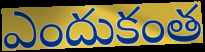
ఎందుకంత